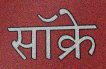
सॉक्रे